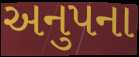
અનુપના